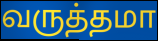
வருத்தமா